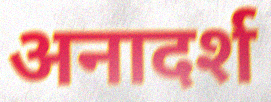
अनादर्श